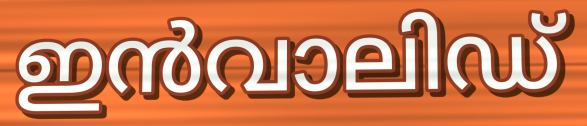
ഇൻവാലിഡ്